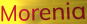
Morenia